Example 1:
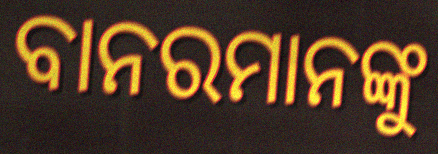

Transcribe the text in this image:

ବାନରମାନଙ୍କୁ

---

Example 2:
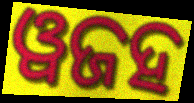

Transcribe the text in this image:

ୱଜହ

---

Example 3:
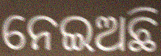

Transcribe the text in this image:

ନେଇଅଛି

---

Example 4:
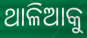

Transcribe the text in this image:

ଥାଳିଆକୁ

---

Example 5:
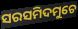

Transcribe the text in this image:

ସରସମିଦମୁଚେ